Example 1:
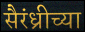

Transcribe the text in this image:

सैरंध्रीच्या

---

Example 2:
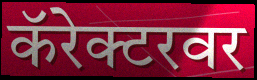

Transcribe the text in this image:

कॅरेक्टरवर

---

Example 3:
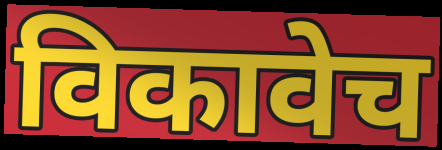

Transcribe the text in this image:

विकावेच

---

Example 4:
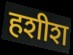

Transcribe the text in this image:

हशीश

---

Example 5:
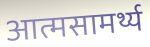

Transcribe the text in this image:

आत्मसामर्थ्य